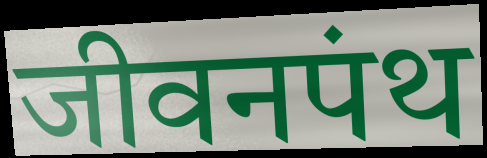
जीवनपंथ